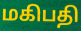
மகிபதி